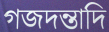
গজদন্তাদি